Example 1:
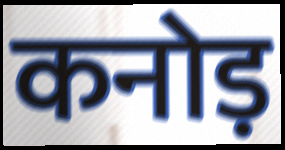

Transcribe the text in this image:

कनोड़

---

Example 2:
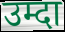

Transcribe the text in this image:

उम्दा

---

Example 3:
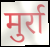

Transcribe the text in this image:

मुर्रा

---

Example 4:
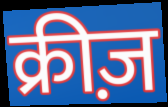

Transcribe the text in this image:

क्रीज़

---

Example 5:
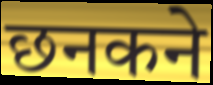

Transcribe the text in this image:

छनकने